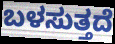
ಬಳಸುತ್ತದೆ